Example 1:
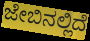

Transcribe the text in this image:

ಜೇಬಿನಲ್ಲಿದೆ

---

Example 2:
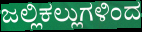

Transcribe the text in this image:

ಜಲ್ಲಿಕಲ್ಲುಗಳಿಂದ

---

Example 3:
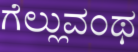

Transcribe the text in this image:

ಗೆಲ್ಲುವಂಥ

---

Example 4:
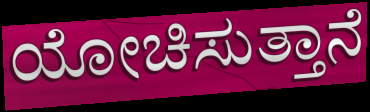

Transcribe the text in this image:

ಯೋಚಿಸುತ್ತಾನೆ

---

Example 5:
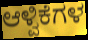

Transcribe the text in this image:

ಆಳ್ವಿಕೆಗಳ